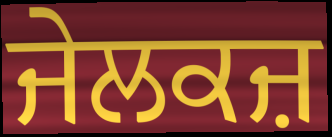
ਜੇਲਕਜ਼